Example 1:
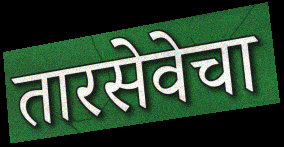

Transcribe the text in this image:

तारसेवेचा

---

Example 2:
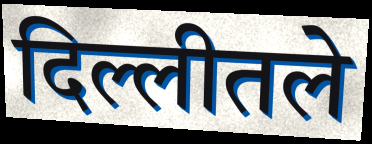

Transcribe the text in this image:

दिल्लीतले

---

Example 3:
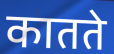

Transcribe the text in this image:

कातते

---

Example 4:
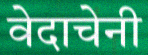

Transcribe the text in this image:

वेदाचेनी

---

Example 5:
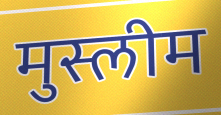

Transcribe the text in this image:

मुस्लीम